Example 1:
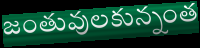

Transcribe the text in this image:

జంతువులకున్నంత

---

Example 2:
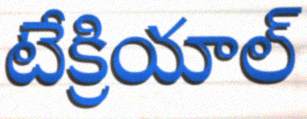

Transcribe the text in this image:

టేక్రియాల్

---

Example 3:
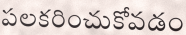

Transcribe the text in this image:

పలకరించుకోవడం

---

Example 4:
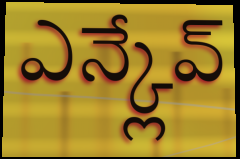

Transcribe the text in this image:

ఎన్క్లేవ్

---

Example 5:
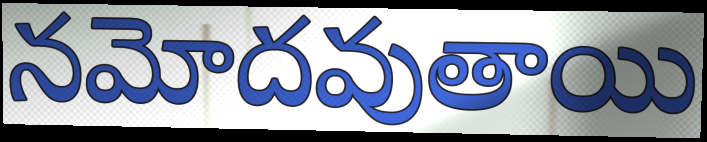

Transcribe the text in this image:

నమోదవుతాయి